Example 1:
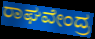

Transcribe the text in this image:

ರಾಘವೇಂದ್ರ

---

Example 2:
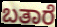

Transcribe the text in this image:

ಬತಾರೆ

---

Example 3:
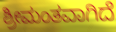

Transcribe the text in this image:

ಶ್ರೀಮಂತವಾಗಿದೆ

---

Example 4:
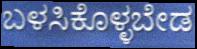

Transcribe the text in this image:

ಬಳಸಿಕೊಳ್ಳಬೇಡ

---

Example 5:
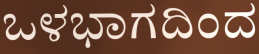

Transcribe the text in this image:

ಒಳಭಾಗದಿಂದ